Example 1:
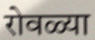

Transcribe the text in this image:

रोवळ्या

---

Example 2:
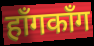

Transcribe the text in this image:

हाँगकाँग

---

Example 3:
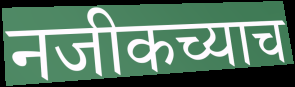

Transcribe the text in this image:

नजीकच्याच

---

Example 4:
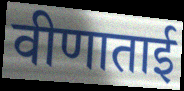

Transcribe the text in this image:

वीणाताई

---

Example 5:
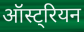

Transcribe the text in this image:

ऑस्ट्रियन